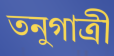
তনুগাত্রী